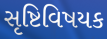
સૃષ્ટિવિષયક